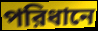
পরিধানে